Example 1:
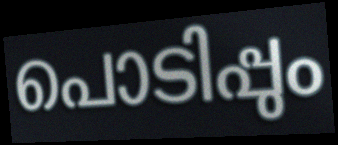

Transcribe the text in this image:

പൊടിപ്പും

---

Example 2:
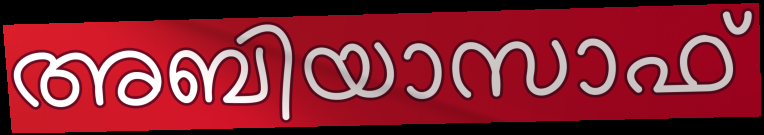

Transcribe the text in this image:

അബിയാസാഫ്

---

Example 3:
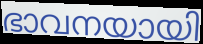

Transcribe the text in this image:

ഭാവനയായി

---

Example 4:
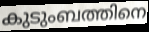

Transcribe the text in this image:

കുടുംബത്തിനെ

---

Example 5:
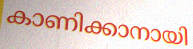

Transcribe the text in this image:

കാണിക്കാനായി